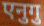
एनुगु